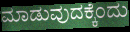
ಮಾಡುವುದಕ್ಕೆಂದು